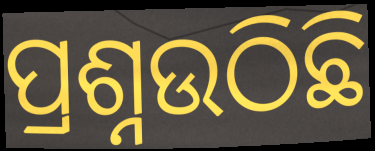
ପ୍ରଶ୍ନଉଠିଛି